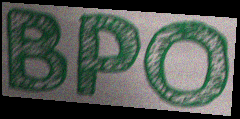
BPO